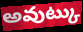
అవుట్కు